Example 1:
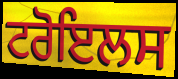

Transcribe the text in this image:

ਟਰੋਇਲਸ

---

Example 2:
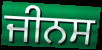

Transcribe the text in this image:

ਜੀਨਸ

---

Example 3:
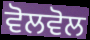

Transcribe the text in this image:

ਵੋਲਵੋਲ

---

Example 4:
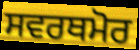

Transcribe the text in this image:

ਸਵਰਥਮੋਰ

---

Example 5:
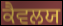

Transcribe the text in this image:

ਕੈਵਲਯ